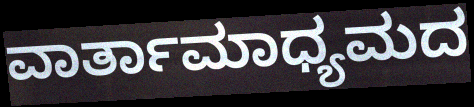
ವಾರ್ತಾಮಾಧ್ಯಮದ